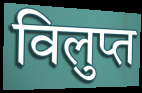
विलुप्त